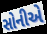
સોનીએ